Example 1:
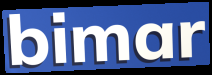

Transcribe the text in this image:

bimar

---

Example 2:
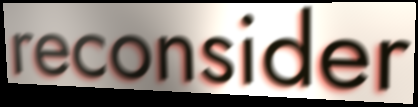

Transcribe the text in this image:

reconsider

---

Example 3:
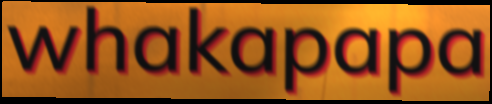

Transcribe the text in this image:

whakapapa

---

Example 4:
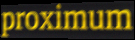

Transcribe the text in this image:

proximum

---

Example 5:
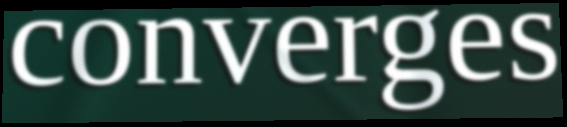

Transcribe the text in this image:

converges